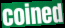
coined